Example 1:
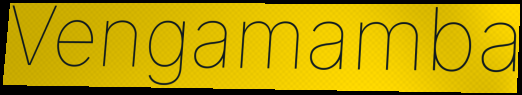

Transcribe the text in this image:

Vengamamba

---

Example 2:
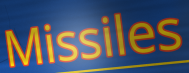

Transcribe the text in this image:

Missiles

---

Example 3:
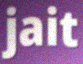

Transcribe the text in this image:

jait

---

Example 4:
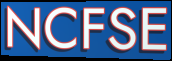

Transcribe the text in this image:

NCFSE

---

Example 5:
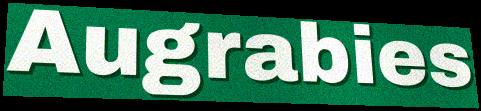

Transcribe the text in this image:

Augrabies